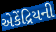
એકેંદ્રિયની